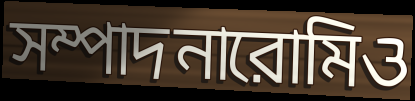
সম্পাদনারোমিও